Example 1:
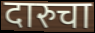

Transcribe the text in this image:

दारुचा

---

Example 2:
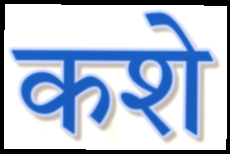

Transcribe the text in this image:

कशे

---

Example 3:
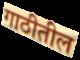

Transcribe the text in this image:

गाठीतील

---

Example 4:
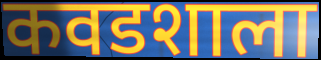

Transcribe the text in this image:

कवडशाला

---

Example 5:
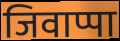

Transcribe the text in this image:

जिवाप्पा